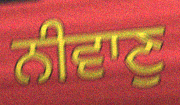
ਨੀਵਾਣੁ